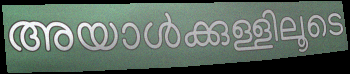
അയാൾക്കുള്ളിലൂടെ